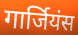
गार्जियंस